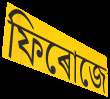
ফিৰোজে